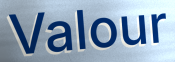
Valour